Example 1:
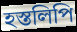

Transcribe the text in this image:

হস্তলিপি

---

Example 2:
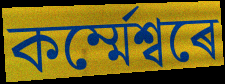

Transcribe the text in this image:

কৰ্ম্মেশ্বৰে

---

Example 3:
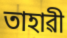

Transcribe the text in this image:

তাহাৱী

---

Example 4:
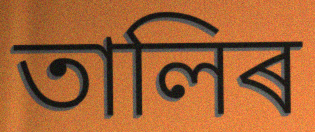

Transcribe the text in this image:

তালিৰ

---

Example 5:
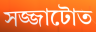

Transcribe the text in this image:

সজ্জাটোত